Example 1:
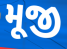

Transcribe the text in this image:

મૂજી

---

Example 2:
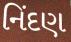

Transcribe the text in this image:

નિંદણ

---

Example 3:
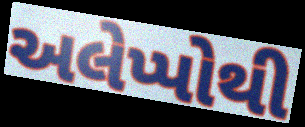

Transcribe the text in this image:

અલેપ્પોથી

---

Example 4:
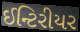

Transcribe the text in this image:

ઈન્ટિરીયર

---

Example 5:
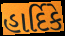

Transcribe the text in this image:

હાર્દિકે